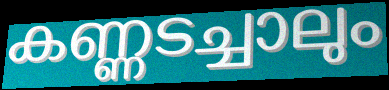
കണ്ണടച്ചാലും